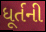
ધૂર્તની